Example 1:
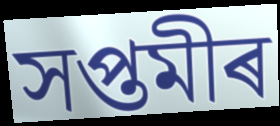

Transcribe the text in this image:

সপ্তমীৰ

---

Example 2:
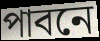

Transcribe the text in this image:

পাবনে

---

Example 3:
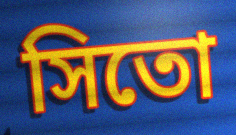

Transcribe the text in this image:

সিতো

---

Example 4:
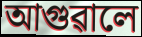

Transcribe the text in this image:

আগুৱালে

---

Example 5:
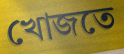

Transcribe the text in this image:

খোজতে